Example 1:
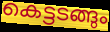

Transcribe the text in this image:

കെട്ടടങ്ങും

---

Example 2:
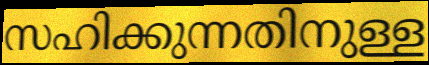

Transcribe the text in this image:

സഹിക്കുന്നതിനുള്ള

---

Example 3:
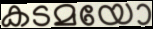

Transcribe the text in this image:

കടമയോ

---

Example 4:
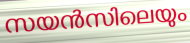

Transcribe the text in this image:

സയൻസിലെയും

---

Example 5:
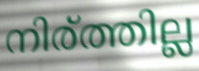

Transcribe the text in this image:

നിര്ത്തില്ല